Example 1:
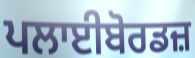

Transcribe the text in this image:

ਪਲਾਈਬੋਰਡਜ਼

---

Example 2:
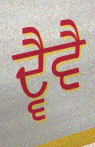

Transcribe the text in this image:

ਦ੍ਵੈਵੈ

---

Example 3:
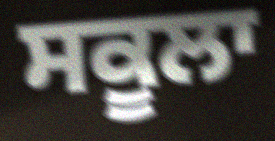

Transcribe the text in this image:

ਸਕੂਲਾ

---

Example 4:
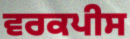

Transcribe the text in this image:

ਵਰਕਪੀਸ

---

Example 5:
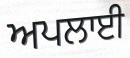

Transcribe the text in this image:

ਅਪਲਾਈ